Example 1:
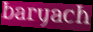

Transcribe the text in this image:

baryach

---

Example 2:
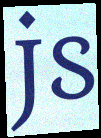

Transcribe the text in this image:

js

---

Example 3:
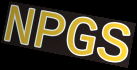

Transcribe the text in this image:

NPGS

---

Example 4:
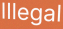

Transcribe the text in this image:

Illegal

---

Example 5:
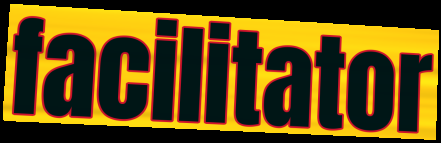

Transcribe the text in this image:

facilitator